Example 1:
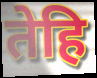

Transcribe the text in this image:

तेहि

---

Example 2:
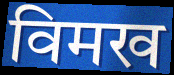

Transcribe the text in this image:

विमख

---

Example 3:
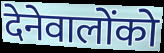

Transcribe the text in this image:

देनेवालोंको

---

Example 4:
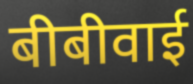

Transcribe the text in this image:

बीबीवाई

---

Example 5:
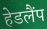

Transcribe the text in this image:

हेडलैंप